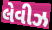
લેવીઝ